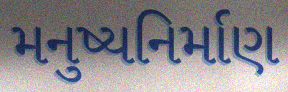
મનુષ્યનિર્માણ